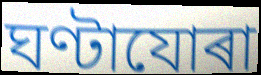
ঘণ্টাযোৰা